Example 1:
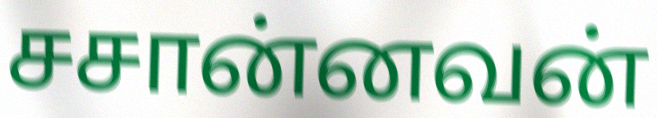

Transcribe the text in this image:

சசான்னவன்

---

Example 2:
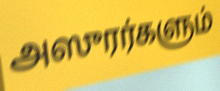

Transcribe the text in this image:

அஸுரர்களும்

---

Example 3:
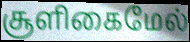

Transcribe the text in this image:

சூளிகைமேல்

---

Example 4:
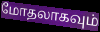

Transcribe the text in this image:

மோதலாகவும்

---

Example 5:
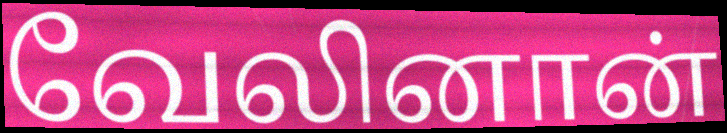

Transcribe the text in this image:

வேலினான்